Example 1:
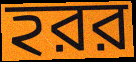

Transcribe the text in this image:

হরর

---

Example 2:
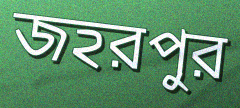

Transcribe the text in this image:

জহরপুর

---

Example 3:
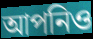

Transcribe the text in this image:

আপনিও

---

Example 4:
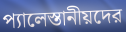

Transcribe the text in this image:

প্যালেস্তানীয়দের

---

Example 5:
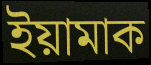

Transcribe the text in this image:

ইয়ামাক